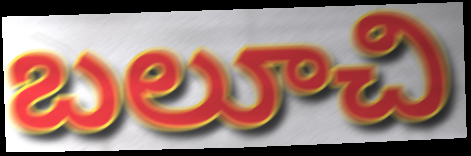
బలూచి